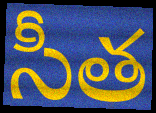
సీత